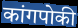
कांगपोकी